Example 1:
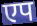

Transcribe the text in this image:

एप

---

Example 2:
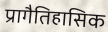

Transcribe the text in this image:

प्रागैतिहासिक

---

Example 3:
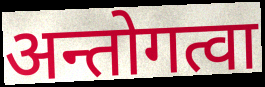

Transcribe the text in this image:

अन्तोगत्वा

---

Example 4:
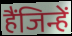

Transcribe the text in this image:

हैंजिन्हें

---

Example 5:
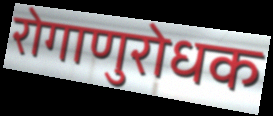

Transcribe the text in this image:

रोगाणुरोधक